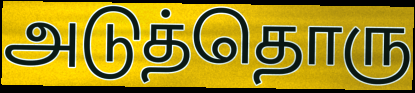
அடுத்தொரு